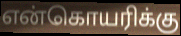
என்கொயரிக்கு